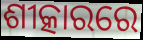
ଶୀତ୍କାରରେ